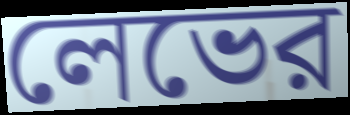
লেভের